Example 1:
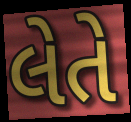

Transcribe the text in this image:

લેતે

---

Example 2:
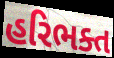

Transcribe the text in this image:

હરિભક્ત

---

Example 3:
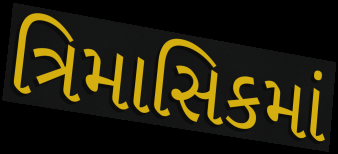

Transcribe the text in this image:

ત્રિમાસિકમાં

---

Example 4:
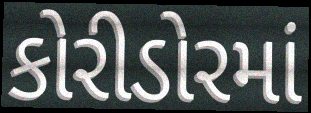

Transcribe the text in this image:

કોરીડોરમાં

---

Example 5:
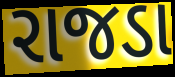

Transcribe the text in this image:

રાજડા